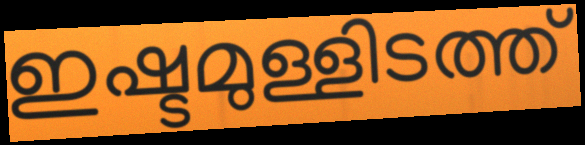
ഇഷ്ടമുള്ളിടത്ത്